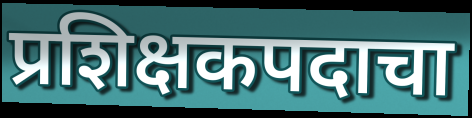
प्रशिक्षकपदाचा